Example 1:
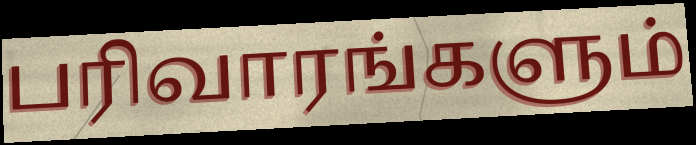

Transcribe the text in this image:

பரிவாரங்களும்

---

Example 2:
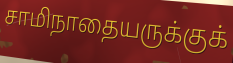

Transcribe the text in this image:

சாமிநாதையருக்குக்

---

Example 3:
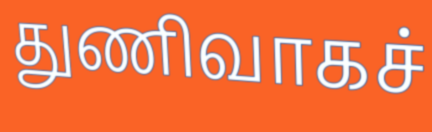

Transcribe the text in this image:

துணிவாகச்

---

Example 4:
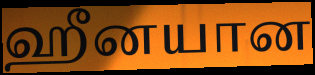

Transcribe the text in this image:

ஹீனயான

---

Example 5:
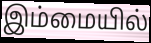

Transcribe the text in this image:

இம்மையில்